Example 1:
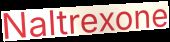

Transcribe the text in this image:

Naltrexone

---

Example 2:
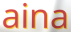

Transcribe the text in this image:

aina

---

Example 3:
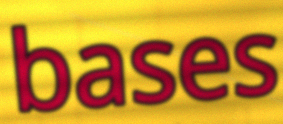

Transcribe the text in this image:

bases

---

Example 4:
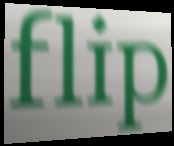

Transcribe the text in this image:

flip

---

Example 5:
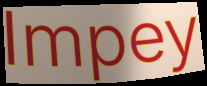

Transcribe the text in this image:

Impey